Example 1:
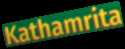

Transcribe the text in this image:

Kathamrita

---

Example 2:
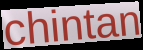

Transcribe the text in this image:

chintan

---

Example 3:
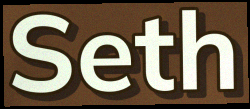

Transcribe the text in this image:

Seth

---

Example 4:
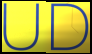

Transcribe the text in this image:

UD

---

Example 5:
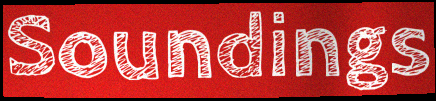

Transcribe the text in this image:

Soundings